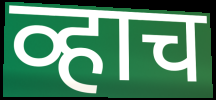
व्हाच